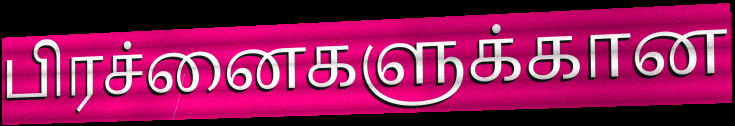
பிரச்னைகளுக்கான